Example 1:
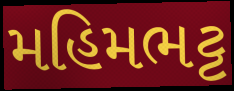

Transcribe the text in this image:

મહિમભટ્ટ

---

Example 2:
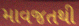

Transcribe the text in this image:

માવજતથી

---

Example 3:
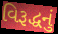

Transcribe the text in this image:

વિરૂદ્ધનું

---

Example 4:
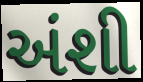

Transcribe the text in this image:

અંશી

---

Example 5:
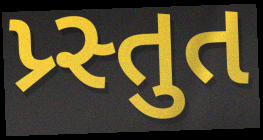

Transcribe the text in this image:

પ્ર્સ્તુત